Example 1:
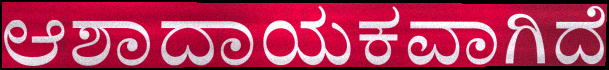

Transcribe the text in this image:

ಆಶಾದಾಯಕವಾಗಿದೆ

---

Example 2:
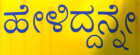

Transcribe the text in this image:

ಹೇಳಿದ್ದನ್ನೇ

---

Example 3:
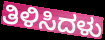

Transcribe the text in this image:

ತಿಳಿಸಿದಳು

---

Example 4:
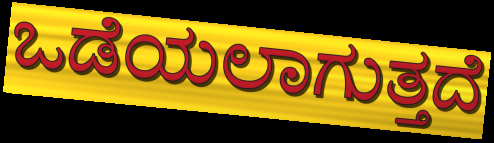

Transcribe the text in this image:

ಒಡೆಯಲಾಗುತ್ತದೆ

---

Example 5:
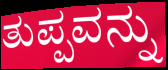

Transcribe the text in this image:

ತುಪ್ಪವನ್ನು